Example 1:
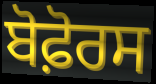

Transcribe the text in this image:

ਬੋਫ਼ੋਰਸ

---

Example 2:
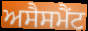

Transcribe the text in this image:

ਅਸੈਸਮੈਂਟ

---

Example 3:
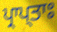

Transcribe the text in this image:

ਪ੍ਰਾਪ੍ਤਾਃ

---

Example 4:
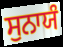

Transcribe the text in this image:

ਸੁਨਾਯੰ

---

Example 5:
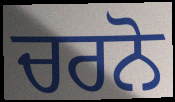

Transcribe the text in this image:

ਚਰਨੋ